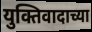
युक्तिवादाच्या